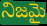
నిజమై